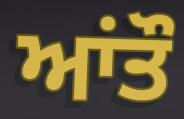
ਆਂਤੌ